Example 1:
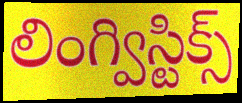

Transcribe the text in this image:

లింగ్విస్టిక్స్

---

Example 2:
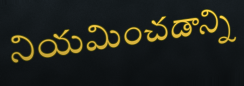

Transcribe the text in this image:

నియమించడాన్ని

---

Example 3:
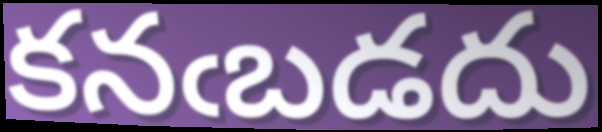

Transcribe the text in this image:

కనఁబడదు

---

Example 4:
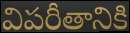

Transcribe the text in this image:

విపరీతానికి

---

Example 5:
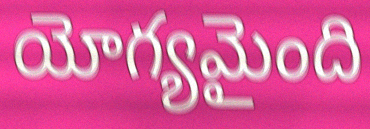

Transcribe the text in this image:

యోగ్యమైంది